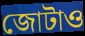
জোটাও